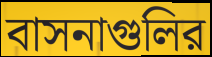
বাসনাগুলির